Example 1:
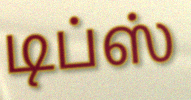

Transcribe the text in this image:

டிப்ஸ்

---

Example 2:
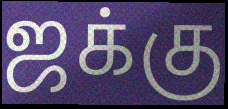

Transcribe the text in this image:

ஜக்கு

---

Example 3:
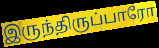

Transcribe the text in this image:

இருந்திருப்பாரோ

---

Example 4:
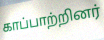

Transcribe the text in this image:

காப்பாற்றினர்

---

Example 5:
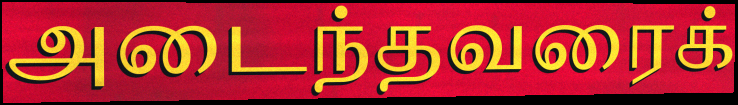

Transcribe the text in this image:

அடைந்தவரைக்